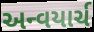
અન્વયાર્ચ